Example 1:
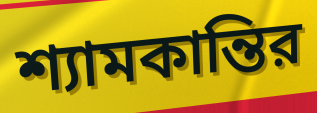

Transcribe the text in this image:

শ্যামকান্তির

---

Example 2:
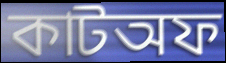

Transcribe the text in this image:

কাটঅফ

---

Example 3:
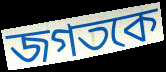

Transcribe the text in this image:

জগতকে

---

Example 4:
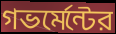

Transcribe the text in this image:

গভর্মেন্টের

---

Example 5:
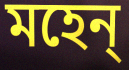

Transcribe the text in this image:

মহেন্